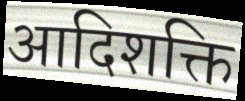
आदिशक्ति